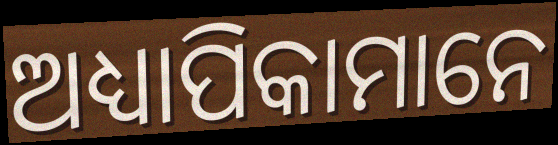
ଅଧ୍ୟାପିକାମାନେ